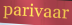
parivaar